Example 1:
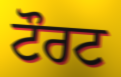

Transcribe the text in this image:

ਟੌਰਟ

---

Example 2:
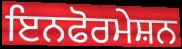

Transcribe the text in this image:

ਇਨਫੋਰਮੇਸ਼ਨ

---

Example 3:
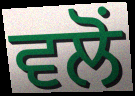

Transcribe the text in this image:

ਵਲੋੰ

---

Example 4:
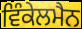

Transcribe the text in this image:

ਵਿੰਕੇਲਮੈਨ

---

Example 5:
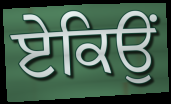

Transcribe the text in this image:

ਏਕਿਉਂ